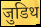
जुडिथ